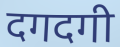
दगदगी